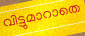
വിട്ടുമാറാതെ